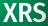
XRS